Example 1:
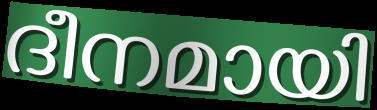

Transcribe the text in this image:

ദീനമായി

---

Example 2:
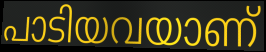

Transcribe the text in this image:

പാടിയവയാണ്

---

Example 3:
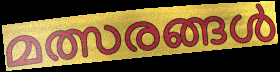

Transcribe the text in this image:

മത്സരങ്ങൾ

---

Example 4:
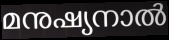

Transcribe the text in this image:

മനുഷ്യനാൽ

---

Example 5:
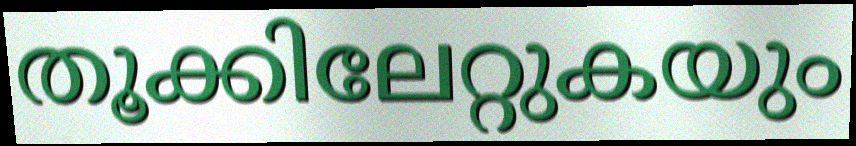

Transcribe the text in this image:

തൂക്കിലേറ്റുകയും